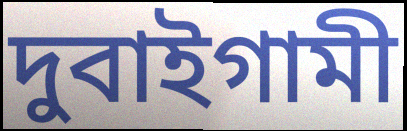
দুবাইগামী